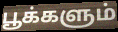
பூக்களும்